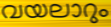
വയലാറും